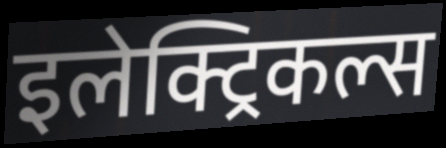
इलेक्ट्रिकल्स